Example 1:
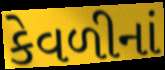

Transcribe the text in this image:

કેવળીનાં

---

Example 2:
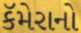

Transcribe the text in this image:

કૅમેરાનો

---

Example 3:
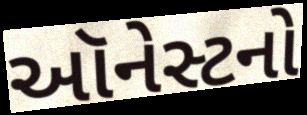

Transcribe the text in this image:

ઑનેસ્ટનો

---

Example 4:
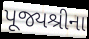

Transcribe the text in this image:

પૂજ્યશ્રીના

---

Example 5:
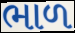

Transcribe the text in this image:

ભાળ